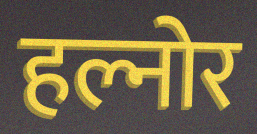
हल्नोर